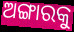
ଅଙ୍ଗାରକୁ